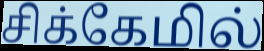
சிக்கேமில்